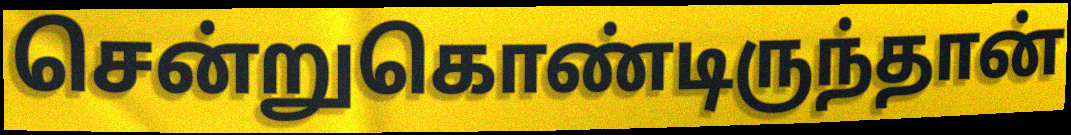
சென்றுகொண்டிருந்தான்